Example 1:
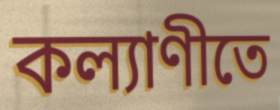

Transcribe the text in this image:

কল্যাণীতে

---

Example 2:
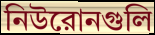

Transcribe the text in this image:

নিউরোনগুলি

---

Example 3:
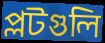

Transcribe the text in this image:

প্লটগুলি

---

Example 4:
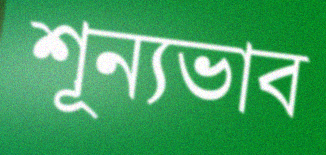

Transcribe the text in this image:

শূন্যভাব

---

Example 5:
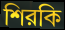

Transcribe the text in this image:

শিরকি